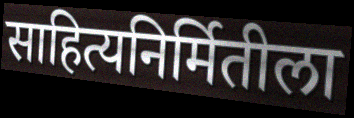
साहित्यनिर्मितीला